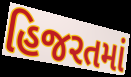
હિજરતમાં